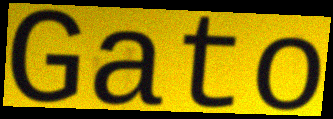
Gato